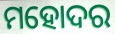
ମହୋଦର